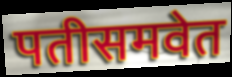
पतीसमवेत